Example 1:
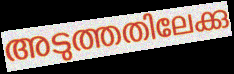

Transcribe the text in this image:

അടുത്തതിലേക്കു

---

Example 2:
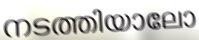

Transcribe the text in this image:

നടത്തിയാലോ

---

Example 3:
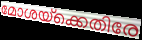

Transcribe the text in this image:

മോശയ്‌ക്കെതിരേ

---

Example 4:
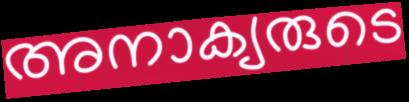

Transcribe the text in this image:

അനാക്യരുടെ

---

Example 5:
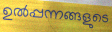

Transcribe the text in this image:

ഉൽപ്പന്നങ്ങളുടെ